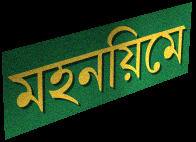
মহনয়িমে